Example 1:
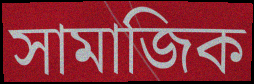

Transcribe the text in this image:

সামাজিক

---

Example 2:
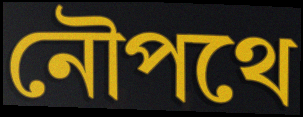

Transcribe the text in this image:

নৌপথে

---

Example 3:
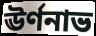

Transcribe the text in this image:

ঊর্ণনাভ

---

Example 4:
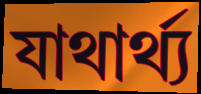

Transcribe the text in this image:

যাথার্থ্য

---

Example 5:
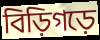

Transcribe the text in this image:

বিড়িগড়ে